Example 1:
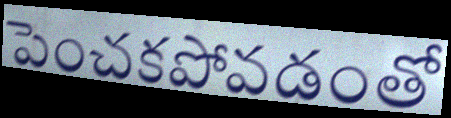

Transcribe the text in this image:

పెంచకపోవడంతో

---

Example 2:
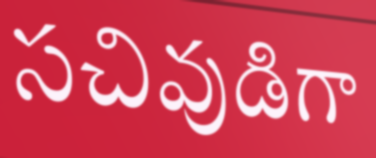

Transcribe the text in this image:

సచివుడిగా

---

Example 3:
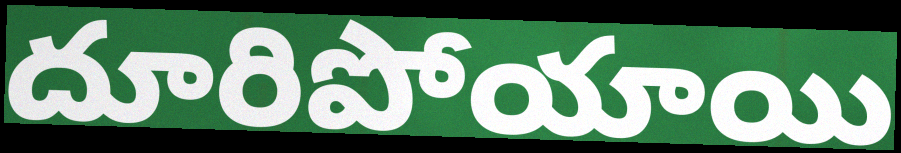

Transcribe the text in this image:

దూరిపోయాయి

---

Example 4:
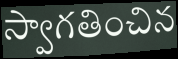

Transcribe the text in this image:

స్వాగతించిన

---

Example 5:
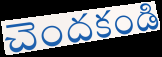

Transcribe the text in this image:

చెందకండి